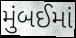
મુંબઈમાં